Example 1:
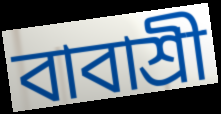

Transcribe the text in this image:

বাবাশ্রী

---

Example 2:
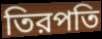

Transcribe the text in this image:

তিরপতি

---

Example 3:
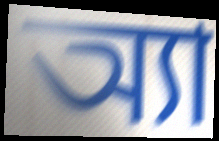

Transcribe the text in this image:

অ্যা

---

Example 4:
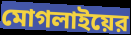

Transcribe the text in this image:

মোগলাইয়ের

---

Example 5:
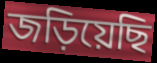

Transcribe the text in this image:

জড়িয়েছি